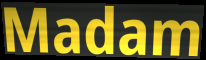
Madam